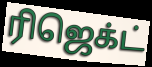
ரிஜெக்ட்